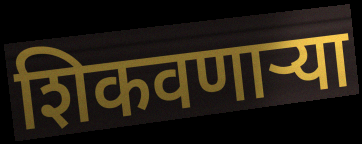
शिकवणाऱ्या